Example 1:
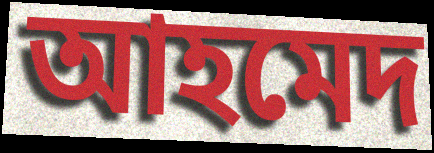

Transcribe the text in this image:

আহমেদ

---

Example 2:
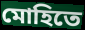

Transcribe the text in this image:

মোহিতে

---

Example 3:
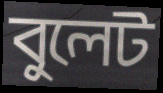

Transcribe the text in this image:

বুলেট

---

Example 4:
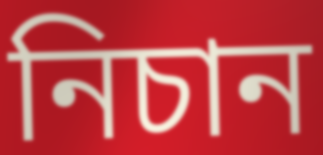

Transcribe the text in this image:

নিচান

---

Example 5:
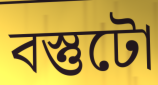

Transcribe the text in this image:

বস্তুটো